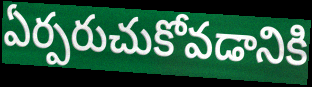
ఏర్పరుచుకోవడానికి